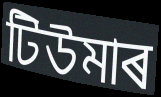
টিউমাৰ